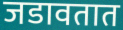
जडावतात